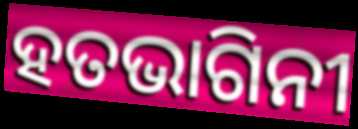
ହତଭାଗିନୀ